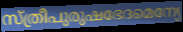
സ്ത്രീപുരുഷഭേദമെന്യേ